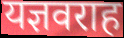
यज्ञवराह